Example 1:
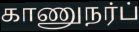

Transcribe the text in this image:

காணுநர்ப்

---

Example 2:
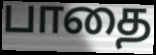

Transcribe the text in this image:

பாதை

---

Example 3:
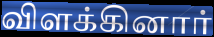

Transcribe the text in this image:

விளக்கினார்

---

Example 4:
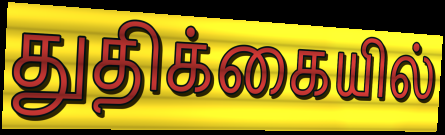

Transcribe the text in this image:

துதிக்கையில்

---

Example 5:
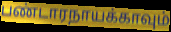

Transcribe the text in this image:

பண்டாரநாயக்காவும்